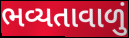
ભવ્યતાવાળું